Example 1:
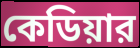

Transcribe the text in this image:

কেডিয়ার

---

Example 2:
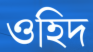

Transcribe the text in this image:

ওহিদ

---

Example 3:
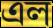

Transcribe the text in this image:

এল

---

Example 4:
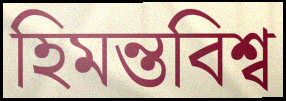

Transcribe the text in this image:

হিমন্তবিশ্ব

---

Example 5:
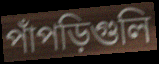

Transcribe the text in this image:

পাঁপড়িগুলি